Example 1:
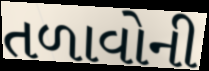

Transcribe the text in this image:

તળાવોની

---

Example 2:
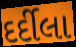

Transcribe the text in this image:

દર્દીલા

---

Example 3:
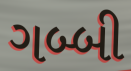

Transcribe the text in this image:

ગબ્બી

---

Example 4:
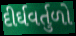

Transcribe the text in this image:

દીર્ઘવર્તુળો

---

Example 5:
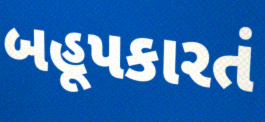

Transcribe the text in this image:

બહૂપકારતં